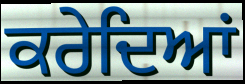
ਕਰੇਦਿਆਂ